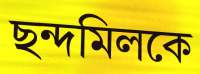
ছন্দমিলকে